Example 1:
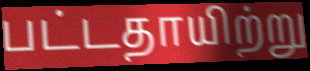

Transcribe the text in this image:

பட்டதாயிற்று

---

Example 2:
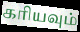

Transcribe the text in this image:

கரியவும்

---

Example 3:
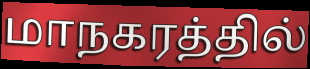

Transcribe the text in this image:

மாநகரத்தில்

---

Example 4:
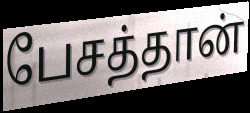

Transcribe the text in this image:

பேசத்தான்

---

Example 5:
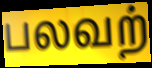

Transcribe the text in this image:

பலவற்